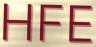
HFE